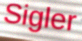
Sigler